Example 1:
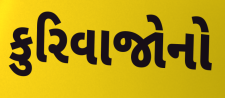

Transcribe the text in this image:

કુરિવાજોનો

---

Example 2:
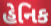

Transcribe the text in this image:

હેનિક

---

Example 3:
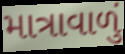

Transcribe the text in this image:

માત્રાવાળું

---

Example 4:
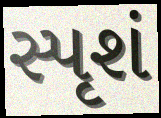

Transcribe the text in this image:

સ્પૃશં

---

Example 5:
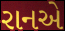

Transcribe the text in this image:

રાનએ